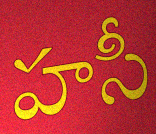
హసీ